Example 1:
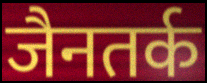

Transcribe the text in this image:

जैनतर्क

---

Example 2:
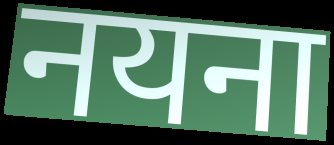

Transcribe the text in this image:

नयना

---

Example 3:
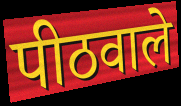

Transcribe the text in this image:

पीठवाले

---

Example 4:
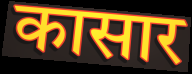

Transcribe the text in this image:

कासार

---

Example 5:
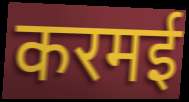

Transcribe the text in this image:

करमई